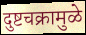
दुष्टचक्रामुळे